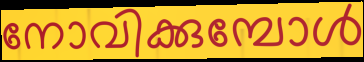
നോവിക്കുമ്പോൾ